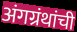
अंगग्रंथांची